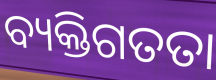
ବ୍ୟକ୍ତିଗତତା